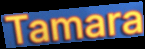
Tamara